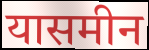
यासमीन